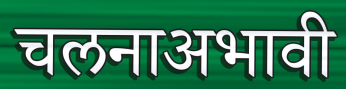
चलनाअभावी